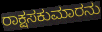
ರಾಕ್ಷಸಕುಮಾರನು